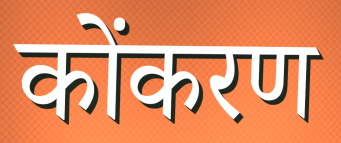
कोंकरण